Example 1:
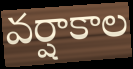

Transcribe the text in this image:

వర్షాకాల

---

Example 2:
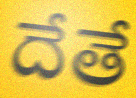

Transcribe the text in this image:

దేతే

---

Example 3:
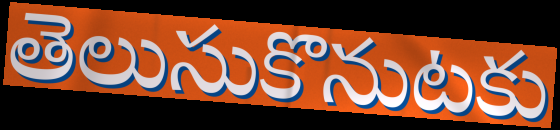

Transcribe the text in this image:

తెలుసుకొనుటకు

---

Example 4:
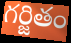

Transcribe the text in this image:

గర్జితం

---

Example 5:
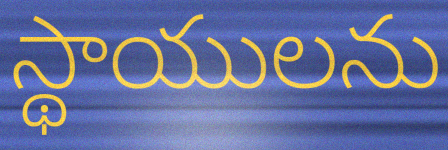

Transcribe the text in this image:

స్థాయులను